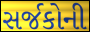
સર્જકોની